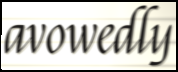
avowedly